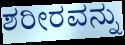
ಶರೀರವನ್ನು